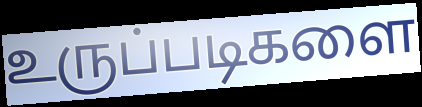
உருப்படிகளை